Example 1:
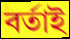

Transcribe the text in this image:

বৰ্তাই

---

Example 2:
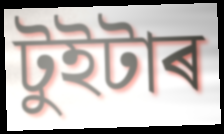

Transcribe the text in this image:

টুইটাৰ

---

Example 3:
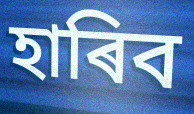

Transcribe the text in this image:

হাৰিব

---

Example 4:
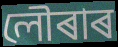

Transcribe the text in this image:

লৌৰাৰ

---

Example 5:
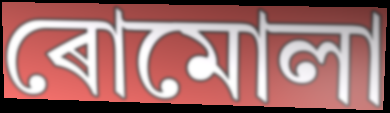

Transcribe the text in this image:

ৰোমোলা